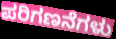
ಪರಿಗಣನೆಗಳು